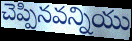
చెప్పినవన్నియు